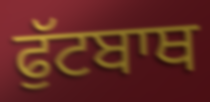
ਫੁੱਟਬਾਥ